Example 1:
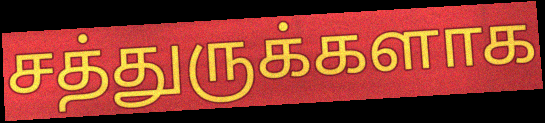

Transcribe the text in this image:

சத்துருக்களாக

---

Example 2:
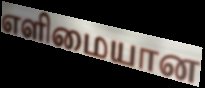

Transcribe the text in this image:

எளிமையான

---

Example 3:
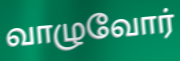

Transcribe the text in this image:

வாழுவோர்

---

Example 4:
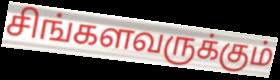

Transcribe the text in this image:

சிங்களவருக்கும்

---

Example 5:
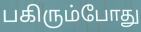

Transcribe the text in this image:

பகிரும்போது